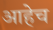
आहेच